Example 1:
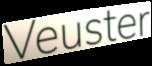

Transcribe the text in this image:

Veuster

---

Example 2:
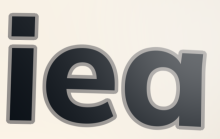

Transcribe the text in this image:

iea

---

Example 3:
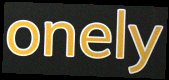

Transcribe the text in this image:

onely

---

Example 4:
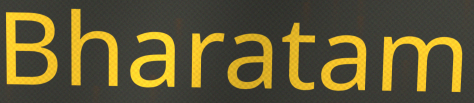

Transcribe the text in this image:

Bharatam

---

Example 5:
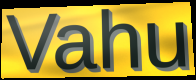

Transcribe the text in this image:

Vahu